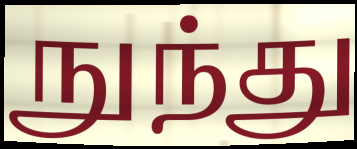
நுந்து